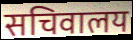
सचिवालय